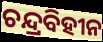
ଚନ୍ଦ୍ରବିହୀନ